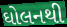
ઘોલનથી